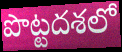
పొట్టదశలో